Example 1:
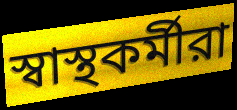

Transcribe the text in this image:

স্বাস্থকর্মীরা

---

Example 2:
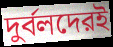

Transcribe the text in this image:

দুর্বলদেরই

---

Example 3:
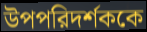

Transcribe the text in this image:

উপপরিদর্শককে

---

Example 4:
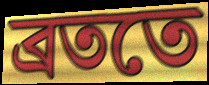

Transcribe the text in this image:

ব্রততে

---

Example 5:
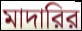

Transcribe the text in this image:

মাদারির